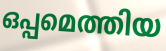
ഒപ്പമെത്തിയ